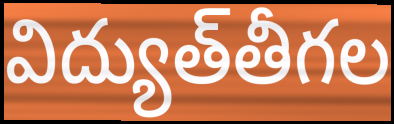
విద్యుత్‌తీగల